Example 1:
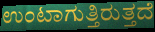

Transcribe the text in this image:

ಉಂಟಾಗುತ್ತಿರುತ್ತದೆ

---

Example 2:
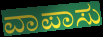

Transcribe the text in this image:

ವಾಪಾಸು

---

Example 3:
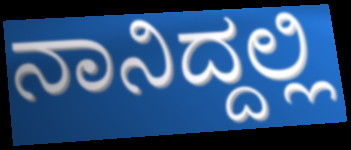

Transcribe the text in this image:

ನಾನಿದ್ದಲ್ಲಿ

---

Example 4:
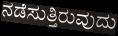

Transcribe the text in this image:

ನಡೆಸುತ್ತಿರುವುದು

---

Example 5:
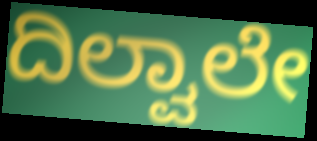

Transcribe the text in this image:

ದಿಲ್ವಾಲೇ